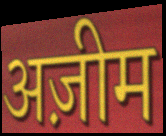
अज़ीम